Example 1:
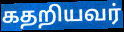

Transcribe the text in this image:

கதறியவர்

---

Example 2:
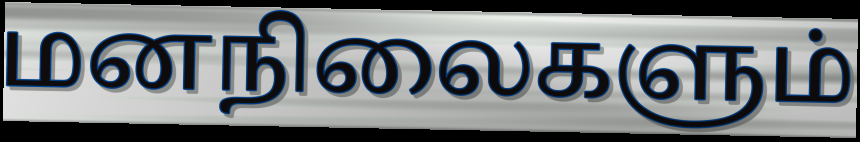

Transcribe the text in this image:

மனநிலைகளும்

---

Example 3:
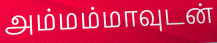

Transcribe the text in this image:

அம்மம்மாவுடன்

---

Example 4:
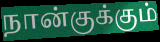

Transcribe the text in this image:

நான்குக்கும்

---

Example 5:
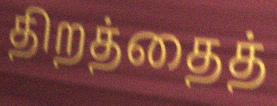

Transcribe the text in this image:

திறத்தைத்